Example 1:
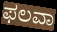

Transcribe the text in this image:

ಫಲವಾ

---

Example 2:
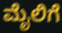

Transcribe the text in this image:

ಮೈಲಿಗೆ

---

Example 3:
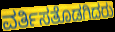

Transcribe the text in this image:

ವರ್ತಿಸತೊಡಗಿದರು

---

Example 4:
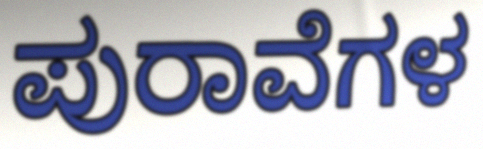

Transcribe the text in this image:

ಪುರಾವೆಗಳ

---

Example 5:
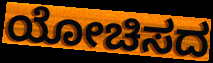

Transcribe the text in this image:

ಯೋಚಿಸದ